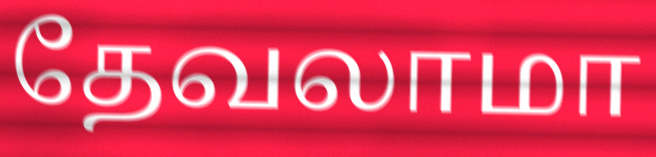
தேவலாமா